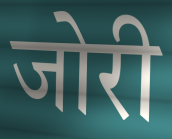
जोरी